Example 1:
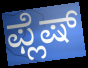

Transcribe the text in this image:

ಫ್ಲೆಷ್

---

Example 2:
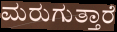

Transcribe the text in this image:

ಮರುಗುತ್ತಾರೆ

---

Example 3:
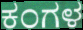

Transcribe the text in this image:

ಕಂಗಳ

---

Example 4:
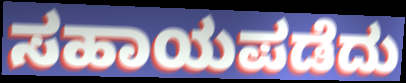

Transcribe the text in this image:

ಸಹಾಯಪಡೆದು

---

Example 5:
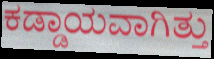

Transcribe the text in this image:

ಕಡ್ಡಾಯವಾಗಿತ್ತು